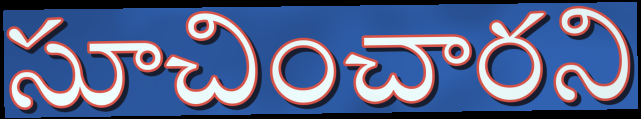
సూచించారని